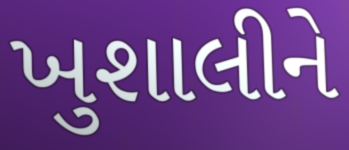
ખુશાલીને